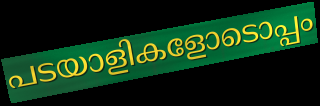
പടയാളികളോടൊപ്പം